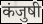
कंजुषी